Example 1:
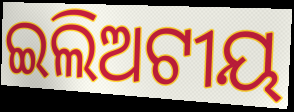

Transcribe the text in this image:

ଇଲିଅଟୀୟ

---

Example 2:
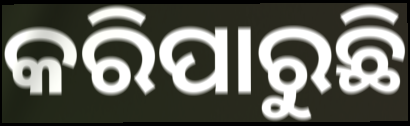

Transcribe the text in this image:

କରିପାରୁଛି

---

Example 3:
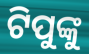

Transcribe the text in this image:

ଟିପୁଙ୍କୁ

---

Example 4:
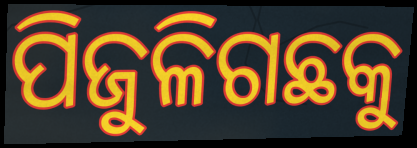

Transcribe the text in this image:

ପିଜୁଳିଗଛକୁ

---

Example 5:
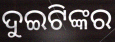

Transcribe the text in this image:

ଦୁଇଟିଙ୍କର